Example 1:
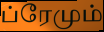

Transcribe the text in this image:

ப்ரேமும்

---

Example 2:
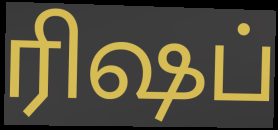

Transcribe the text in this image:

ரிஷப்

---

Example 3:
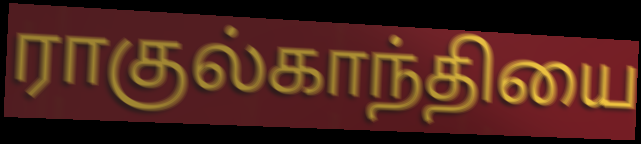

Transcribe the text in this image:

ராகுல்காந்தியை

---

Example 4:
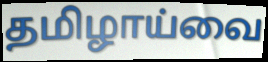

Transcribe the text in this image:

தமிழாய்வை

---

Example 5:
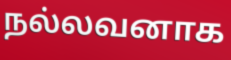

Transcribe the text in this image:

நல்லவனாக